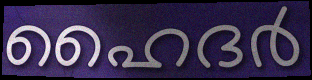
ഹൈദർ